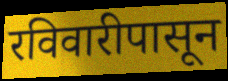
रविवारीपासून